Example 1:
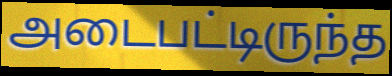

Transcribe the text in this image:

அடைபட்டிருந்த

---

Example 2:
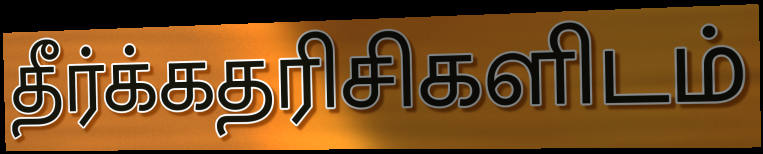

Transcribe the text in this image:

தீர்க்கதரிசிகளிடம்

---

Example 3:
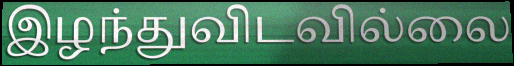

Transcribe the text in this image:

இழந்துவிடவில்லை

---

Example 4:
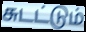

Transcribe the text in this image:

சுடட்டும்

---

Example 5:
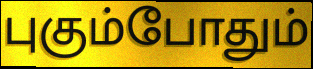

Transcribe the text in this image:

புகும்போதும்